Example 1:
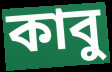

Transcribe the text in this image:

কাবু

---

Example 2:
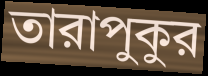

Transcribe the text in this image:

তারাপুকুর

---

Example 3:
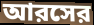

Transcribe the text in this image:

আরসের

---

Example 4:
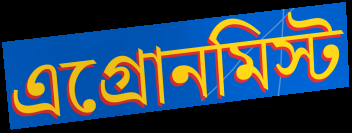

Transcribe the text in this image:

এগ্রোনমিস্ট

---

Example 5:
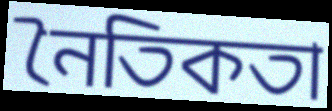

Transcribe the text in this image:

নৈতিকতা